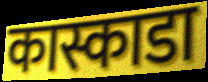
कास्काडा